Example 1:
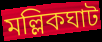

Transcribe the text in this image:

মল্লিকঘাট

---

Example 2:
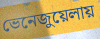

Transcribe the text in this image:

ভেনেজুয়েলায়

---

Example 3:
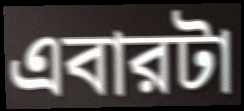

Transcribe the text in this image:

এবারটা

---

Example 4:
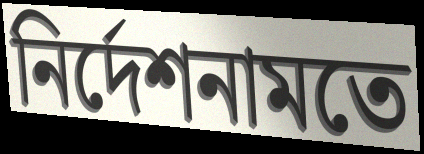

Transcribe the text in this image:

নির্দেশনামতে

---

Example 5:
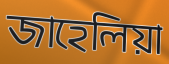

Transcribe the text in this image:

জাহেলিয়া